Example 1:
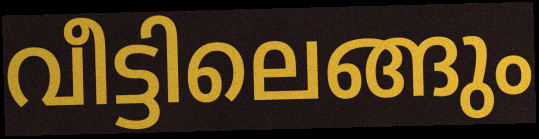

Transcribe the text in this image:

വീട്ടിലെങ്ങും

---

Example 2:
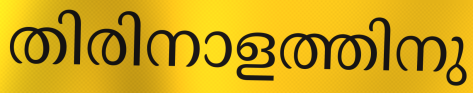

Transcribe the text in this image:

തിരിനാളത്തിനു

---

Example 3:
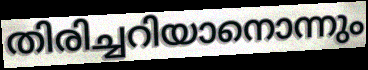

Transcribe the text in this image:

തിരിച്ചറിയാനൊന്നും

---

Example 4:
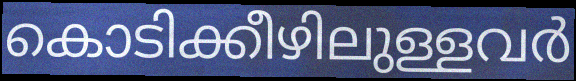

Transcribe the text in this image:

കൊടിക്കീഴിലുള്ളവർ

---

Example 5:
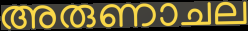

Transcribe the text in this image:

അരുണാചല